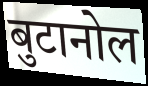
बुटानोल